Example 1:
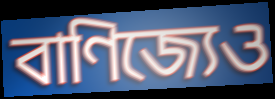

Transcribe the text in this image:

বাণিজ্যেও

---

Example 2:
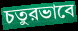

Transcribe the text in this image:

চতুরভাবে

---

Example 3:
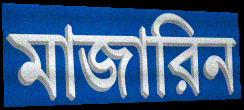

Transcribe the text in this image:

মাজারিন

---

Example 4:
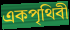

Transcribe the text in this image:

একপৃথিবী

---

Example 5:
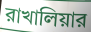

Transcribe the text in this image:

রাখালিয়ার